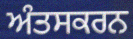
ਅੰਤਸਕਰਨ